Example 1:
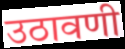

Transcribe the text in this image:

उठावणी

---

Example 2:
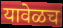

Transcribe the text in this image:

यावेळच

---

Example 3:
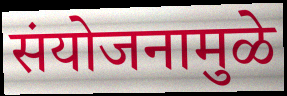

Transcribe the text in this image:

संयोजनामुळे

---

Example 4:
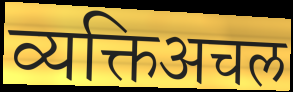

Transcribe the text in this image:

व्यक्तिअचल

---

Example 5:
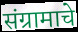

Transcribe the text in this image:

संग्रामाचे